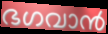
ഭഗവാൻ